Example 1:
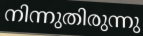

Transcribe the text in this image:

നിന്നുതിരുന്നു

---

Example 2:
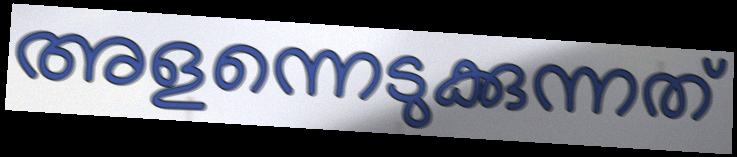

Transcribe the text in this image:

അളന്നെടുക്കുന്നത്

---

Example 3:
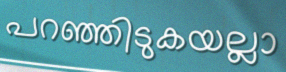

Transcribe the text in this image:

പറഞ്ഞിടുകയല്ലാ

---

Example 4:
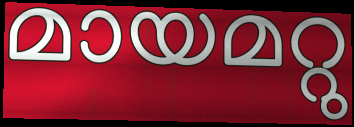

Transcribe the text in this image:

മായമറ്റു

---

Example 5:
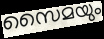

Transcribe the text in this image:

സൈമയും